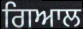
ਗਿਆਲ